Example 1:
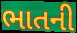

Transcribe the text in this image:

ભાતની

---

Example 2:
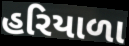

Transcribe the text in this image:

હરિયાળા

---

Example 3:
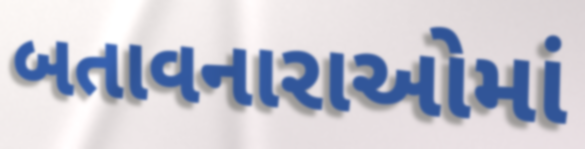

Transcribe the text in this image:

બતાવનારાઓમાં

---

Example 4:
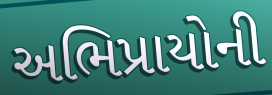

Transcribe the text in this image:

અભિપ્રાયોની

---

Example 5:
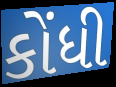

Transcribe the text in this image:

કોંધી